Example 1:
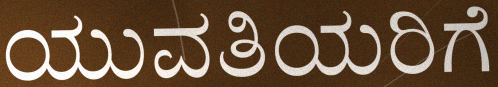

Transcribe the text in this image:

ಯುವತಿಯರಿಗೆ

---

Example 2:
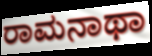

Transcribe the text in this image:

ರಾಮನಾಥಾ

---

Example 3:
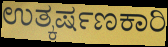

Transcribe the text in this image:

ಉತ್ಕರ್ಷಣಕಾರಿ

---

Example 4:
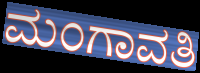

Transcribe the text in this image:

ಮಂಗಾವತಿ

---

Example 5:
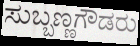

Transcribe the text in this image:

ಸುಬ್ಬಣ್ಣಗೌಡರು